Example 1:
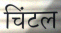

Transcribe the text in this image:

चिंटल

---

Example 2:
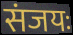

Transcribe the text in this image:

संजयः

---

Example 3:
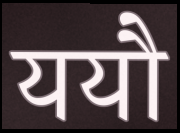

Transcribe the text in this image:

ययौ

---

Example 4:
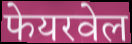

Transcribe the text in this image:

फेयरवेल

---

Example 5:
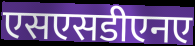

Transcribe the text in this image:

एसएसडीएनए